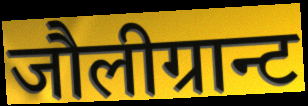
जौलीग्रान्ट